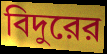
বিদুরের